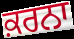
ਕ਼ਰਨਾ